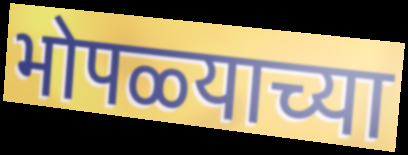
भोपळ्याच्या